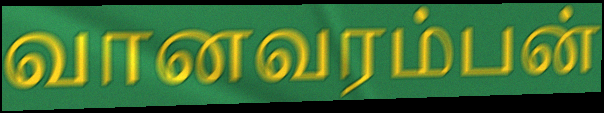
வானவரம்பன்